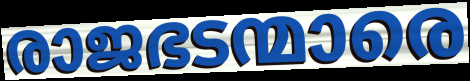
രാജഭടന്മാരെ